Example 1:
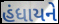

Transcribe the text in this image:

હંધાયને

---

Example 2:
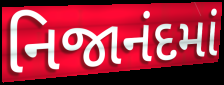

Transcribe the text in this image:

નિજાનંદમાં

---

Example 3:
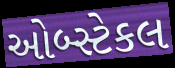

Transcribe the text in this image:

ઓબ્સ્ટેકલ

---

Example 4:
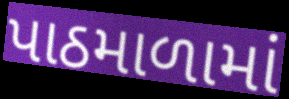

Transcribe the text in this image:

પાઠમાળામાં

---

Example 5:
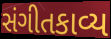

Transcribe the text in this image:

સંગીતકાવ્ય